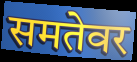
समतेवर